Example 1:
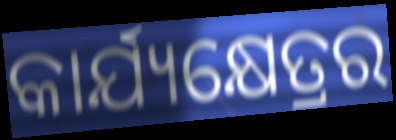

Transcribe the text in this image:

କାର୍ଯ୍ୟକ୍ଷେତ୍ରର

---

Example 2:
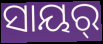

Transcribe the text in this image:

ସାୟର୍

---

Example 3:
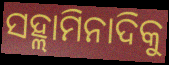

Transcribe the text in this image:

ସହ୍ଲାମିନାଦିକୁ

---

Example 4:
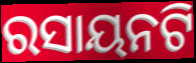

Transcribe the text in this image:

ରସାୟନଟି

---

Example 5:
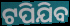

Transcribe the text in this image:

ଟପିଯିବ